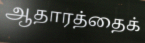
ஆதாரத்தைக்